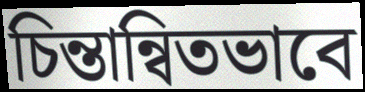
চিন্তান্বিতভাবে